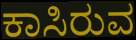
ಕಾಸಿರುವ